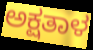
ಅಕ್ಷತಾಳ